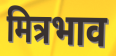
मित्रभाव